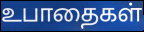
உபாதைகள்